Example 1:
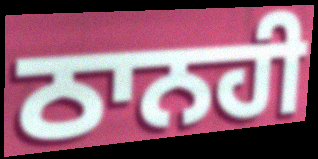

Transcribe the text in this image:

ਠਾਨਹੀ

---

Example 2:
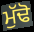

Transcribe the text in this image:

ਮੁੱਢੋ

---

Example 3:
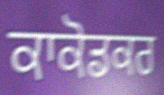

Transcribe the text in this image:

ਕਾਕੋਡਕਰ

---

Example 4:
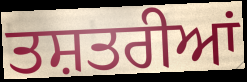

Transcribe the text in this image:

ਤਸ਼ਤਰੀਆਂ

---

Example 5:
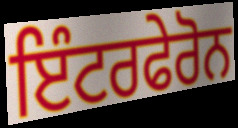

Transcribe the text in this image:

ਇੰਟਰਫੇਰੋਨ